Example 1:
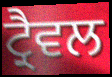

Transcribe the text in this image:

ਟ੍ਰੈਵਲ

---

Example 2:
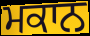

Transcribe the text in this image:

ਮਕਾਨ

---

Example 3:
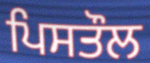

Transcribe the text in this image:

ਪਿਸਤੌਲ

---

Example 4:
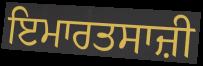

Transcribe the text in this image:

ਇਮਾਰਤਸਾਜ਼ੀ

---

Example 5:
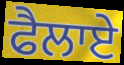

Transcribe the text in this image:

ਫੈਲਾਏ